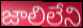
జాలిలేని